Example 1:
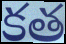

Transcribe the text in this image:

కత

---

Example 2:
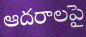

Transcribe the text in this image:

ఆదరాలపై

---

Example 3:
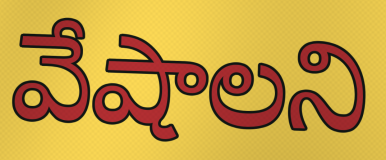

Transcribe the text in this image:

వేషాలని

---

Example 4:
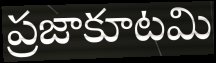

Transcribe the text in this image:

ప్రజాకూటమి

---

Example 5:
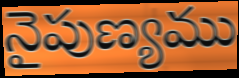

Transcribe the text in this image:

నైపుణ్యము